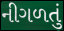
નીગળતું